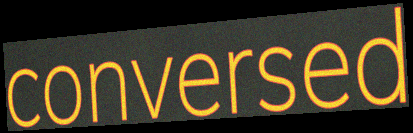
conversed